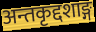
अन्तकृद्दशाङ्ग